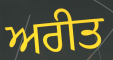
ਅਰੀਤ